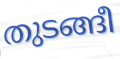
തുടങ്ങീ